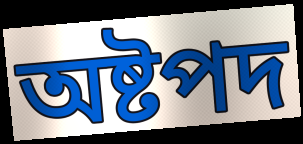
অষ্টপদ